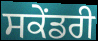
ਸਕੇਂਡਰੀ